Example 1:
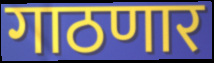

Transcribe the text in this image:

गाठणार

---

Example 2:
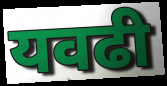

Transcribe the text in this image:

यवढी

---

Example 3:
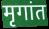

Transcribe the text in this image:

मृगांत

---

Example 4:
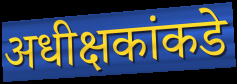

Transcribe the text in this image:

अधीक्षकांकडे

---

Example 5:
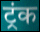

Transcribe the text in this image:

ट्रंक